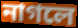
নাগলে